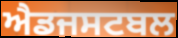
ਐਡਜਸਟਬਲ